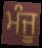
ਮੰਜੂ